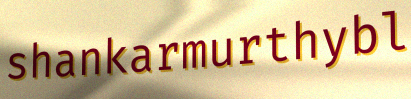
shankarmurthybl